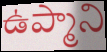
ఉప్మాని